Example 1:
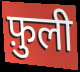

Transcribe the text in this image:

फ़ुली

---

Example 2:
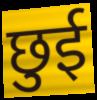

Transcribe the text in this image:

छुई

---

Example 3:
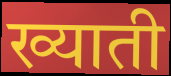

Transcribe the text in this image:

ख्याती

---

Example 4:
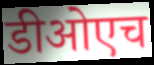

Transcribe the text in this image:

डीओएच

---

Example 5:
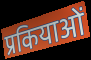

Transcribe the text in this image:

प्रकियाओं